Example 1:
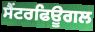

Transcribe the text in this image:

ਸੈਂਟਰਫਿਊਗਲ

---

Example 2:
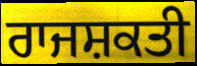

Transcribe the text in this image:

ਰਾਜਸ਼ਕਤੀ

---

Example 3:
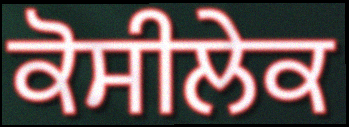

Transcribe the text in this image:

ਕੋਸੀਲੇਕ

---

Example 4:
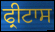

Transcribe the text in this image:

ਫ੍ਰੀਟਾਸ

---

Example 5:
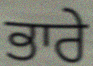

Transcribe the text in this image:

ਭਾਰੇ